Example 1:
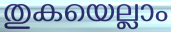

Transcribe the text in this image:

തുകയെല്ലാം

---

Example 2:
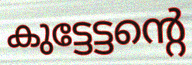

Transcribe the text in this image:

കുട്ടേട്ടന്റെ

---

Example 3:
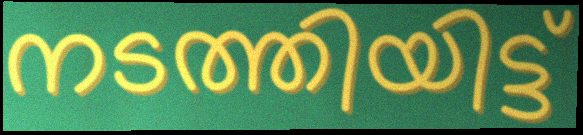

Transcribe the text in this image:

നടത്തിയിട്ട്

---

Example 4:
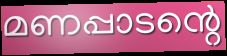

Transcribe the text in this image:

മണപ്പാടന്റെ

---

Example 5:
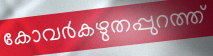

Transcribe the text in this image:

കോവർകഴുതപ്പുറത്ത്